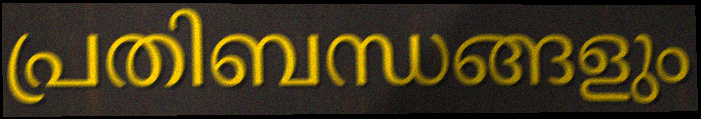
പ്രതിബന്ധങ്ങളും